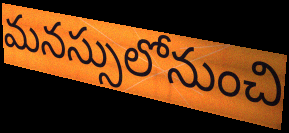
మనస్సులోనుంచి